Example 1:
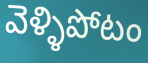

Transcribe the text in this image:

వెళ్ళిపోటం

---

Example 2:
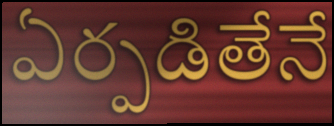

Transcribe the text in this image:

ఏర్పడితేనే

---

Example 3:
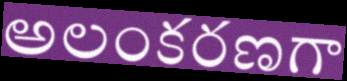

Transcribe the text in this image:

అలంకరణగా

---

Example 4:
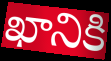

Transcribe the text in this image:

ఖానికి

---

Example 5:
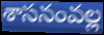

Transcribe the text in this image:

శాసనంవల్ల